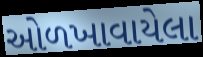
ઓળખાવાયેલા